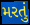
મરતું